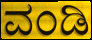
ವಂಡಿ